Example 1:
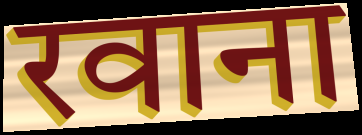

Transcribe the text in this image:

रवाना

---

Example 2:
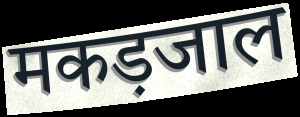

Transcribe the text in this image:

मकड़जाल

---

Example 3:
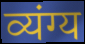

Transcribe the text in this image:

व्यंग्य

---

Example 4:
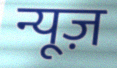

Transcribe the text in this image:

न्यूज़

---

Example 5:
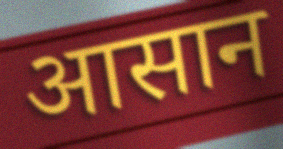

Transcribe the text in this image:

आसान